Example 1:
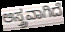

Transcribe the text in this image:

ಅಸ್ತ್ರವಾಗಿದೆ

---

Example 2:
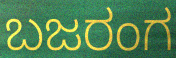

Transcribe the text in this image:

ಬಜರಂಗ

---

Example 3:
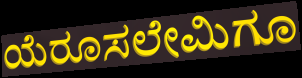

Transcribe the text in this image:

ಯೆರೂಸಲೇಮಿಗೂ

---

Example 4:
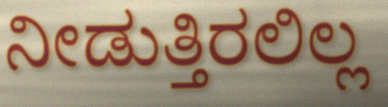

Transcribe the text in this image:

ನೀಡುತ್ತಿರಲಿಲ್ಲ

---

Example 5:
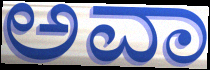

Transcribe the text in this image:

ಅವಾ